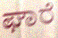
ಘಾರೆ